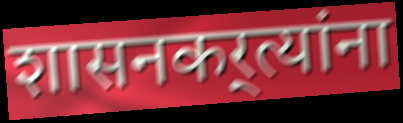
शासनकर्त्यांना